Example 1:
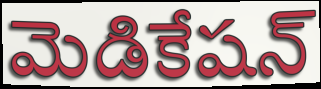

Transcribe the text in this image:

మెడికేషన్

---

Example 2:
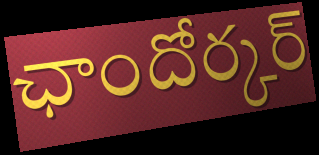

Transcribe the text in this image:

ఛాందోర్కర్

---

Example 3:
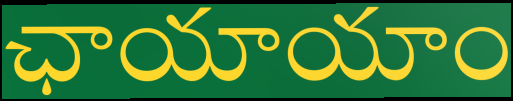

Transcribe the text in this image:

ఛాయాయాం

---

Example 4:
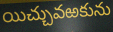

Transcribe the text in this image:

యిచ్చువఱకును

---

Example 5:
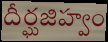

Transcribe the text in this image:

దీర్ఘజిహ్వం